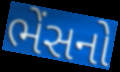
ભેંસનો